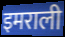
इमराली